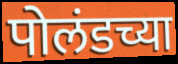
पोलंडच्या